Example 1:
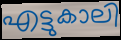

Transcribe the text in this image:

എട്ടുകാലി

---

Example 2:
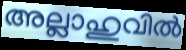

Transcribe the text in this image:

അല്ലാഹുവിൽ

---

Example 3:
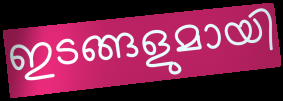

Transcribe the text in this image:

ഇടങ്ങളുമായി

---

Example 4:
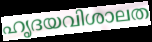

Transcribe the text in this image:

ഹൃദയവിശാലത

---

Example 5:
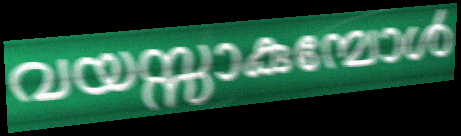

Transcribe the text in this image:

വയസ്സാകുമ്പോൾ